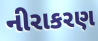
નીરાકરણ